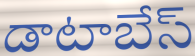
డాటాబేస్